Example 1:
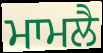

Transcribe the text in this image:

ਮਾਮਲੈ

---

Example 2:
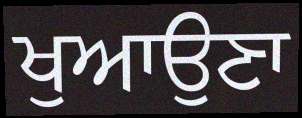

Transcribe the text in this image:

ਖੁਆਉਣਾ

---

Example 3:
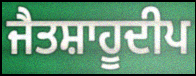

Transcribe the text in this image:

ਜੈਤਸ਼ਾਹੂਦੀਪ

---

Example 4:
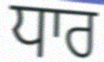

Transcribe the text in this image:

ਧਾਰ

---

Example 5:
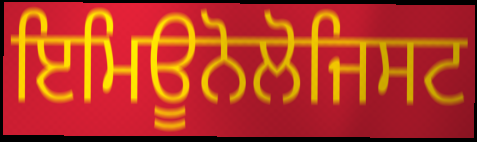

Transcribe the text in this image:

ਇਮਿਊਨੋਲੋਜਿਸਟ